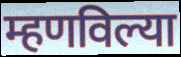
म्हणविल्या